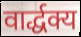
वार्द्धक्य